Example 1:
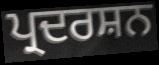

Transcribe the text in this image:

ਪ੍ਰਦਰਸ਼ਨ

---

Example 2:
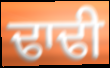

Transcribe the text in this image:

ਢਾਢੀ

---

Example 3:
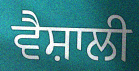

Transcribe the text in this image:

ਵੈਸ਼ਾਲੀ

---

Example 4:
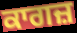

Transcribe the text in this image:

ਕਾਗਜ਼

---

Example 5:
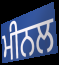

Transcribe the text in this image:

ਮੀਨਲ